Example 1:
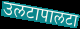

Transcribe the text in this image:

उलटापालटा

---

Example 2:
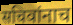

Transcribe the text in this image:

सचिवांनाच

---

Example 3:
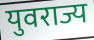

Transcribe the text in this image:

युवराज्य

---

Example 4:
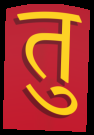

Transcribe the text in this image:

तु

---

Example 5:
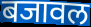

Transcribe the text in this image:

बजावल